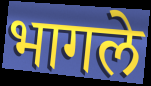
भागले